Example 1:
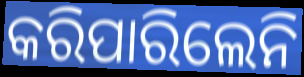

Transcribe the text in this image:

କରିପାରିଲେନି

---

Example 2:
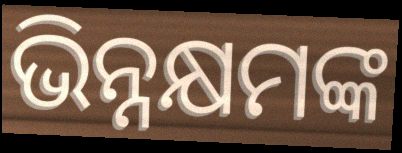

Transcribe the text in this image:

ଭିନ୍ନକ୍ଷମଙ୍କ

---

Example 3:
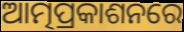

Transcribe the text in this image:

ଆତ୍ମପ୍ରକାଶନରେ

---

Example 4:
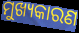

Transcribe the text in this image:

ମୁଖ୍ୟକାରଣ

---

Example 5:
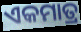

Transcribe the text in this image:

ଏକମାତ୍ର